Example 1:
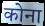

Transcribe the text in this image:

कोना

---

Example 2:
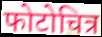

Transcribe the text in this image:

फोटोचित्र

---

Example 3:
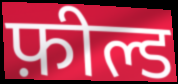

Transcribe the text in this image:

फ़ील्ड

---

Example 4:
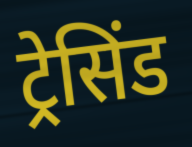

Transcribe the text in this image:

ट्रेसिंड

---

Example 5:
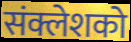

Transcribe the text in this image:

संक्लेशको